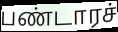
பண்டாரச்